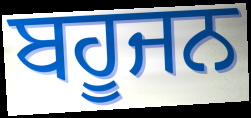
ਬਹੂਜਨ